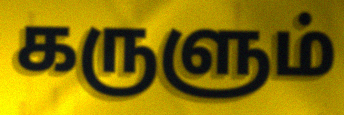
கருளும்